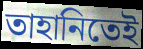
তাহানিতেই